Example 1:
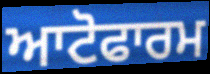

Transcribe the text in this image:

ਆਟੋਫਾਰਮ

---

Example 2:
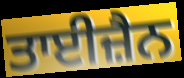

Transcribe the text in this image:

ਤਾਈਜ਼ੈਨ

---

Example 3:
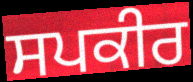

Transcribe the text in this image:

ਸਪਕੀਰ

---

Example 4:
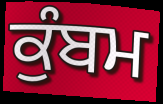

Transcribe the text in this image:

ਕੁੰਬਮ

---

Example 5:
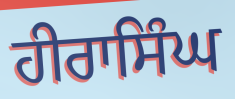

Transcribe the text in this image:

ਹੀਰਾਸਿੰਘ